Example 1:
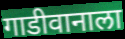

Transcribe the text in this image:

गाडीवानाला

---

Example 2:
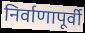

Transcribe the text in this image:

निर्वाणापूर्वी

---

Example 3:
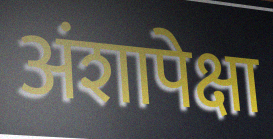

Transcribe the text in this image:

अंशापेक्षा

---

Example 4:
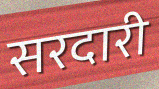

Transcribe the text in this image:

सरदारी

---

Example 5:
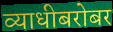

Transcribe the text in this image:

व्याधीबरोबर